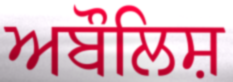
ਅਬੌਲਿਸ਼